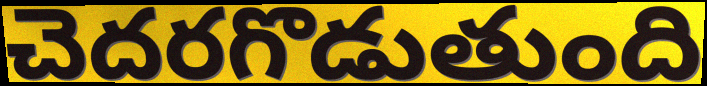
చెదరగొడుతుంది